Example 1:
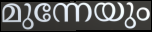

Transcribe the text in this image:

മുന്നേയും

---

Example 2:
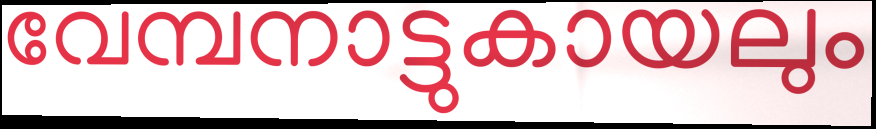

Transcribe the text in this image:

വേമ്പനാട്ടുകായലും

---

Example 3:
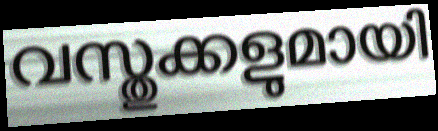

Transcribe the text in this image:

വസ്തുക്കളുമായി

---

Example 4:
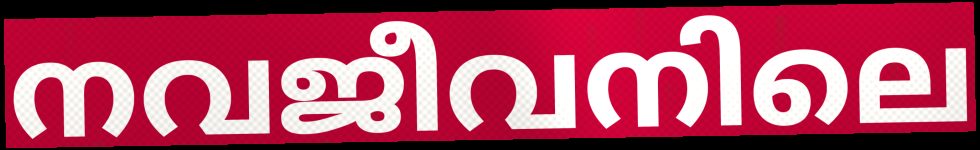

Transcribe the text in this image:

നവജീവനിലെ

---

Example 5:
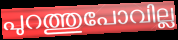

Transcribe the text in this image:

പുറത്തുപോവില്ല